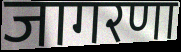
जागरणा